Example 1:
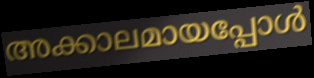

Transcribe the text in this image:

അക്കാലമായപ്പോൾ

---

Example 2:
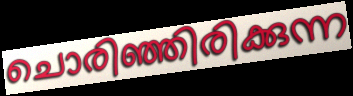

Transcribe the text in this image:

ചൊരിഞ്ഞിരിക്കുന്ന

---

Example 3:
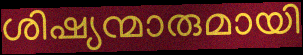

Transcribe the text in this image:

ശിഷ്യന്മാരുമായി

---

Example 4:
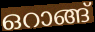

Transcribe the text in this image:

ഒറാങ്ങ്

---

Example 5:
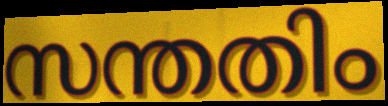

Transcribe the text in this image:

സന്തതിം